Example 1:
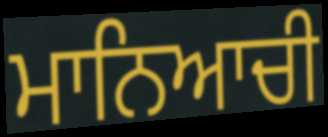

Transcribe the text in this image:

ਮਾਨਿਆਚੀ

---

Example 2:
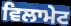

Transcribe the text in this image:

ਵਿਲਾਮੇਟ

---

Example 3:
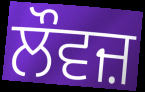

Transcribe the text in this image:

ਲੌਵਜ਼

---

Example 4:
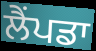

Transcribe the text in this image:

ਲੈਂਪਡਾ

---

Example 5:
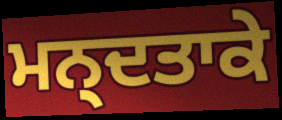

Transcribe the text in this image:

ਮਨ੍ਦਤਾਕੇ